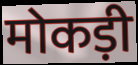
मोकड़ी